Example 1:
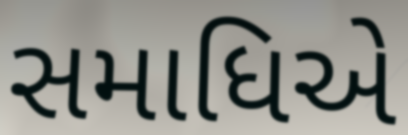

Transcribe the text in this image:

સમાધિએ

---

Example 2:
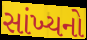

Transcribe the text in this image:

સાંખ્યનો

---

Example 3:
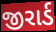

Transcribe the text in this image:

જીરાર્ડ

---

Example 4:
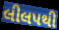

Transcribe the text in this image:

લીલપથી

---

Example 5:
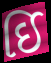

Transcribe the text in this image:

ઈિ